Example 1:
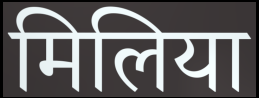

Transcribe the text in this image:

मिलिया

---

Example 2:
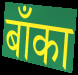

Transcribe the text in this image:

बाँका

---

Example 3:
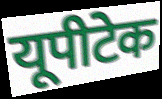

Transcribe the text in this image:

यूपीटेक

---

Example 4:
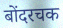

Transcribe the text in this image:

बोंदरचक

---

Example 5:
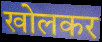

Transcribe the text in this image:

खोलकर